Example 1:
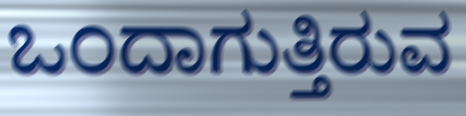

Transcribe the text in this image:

ಒಂದಾಗುತ್ತಿರುವ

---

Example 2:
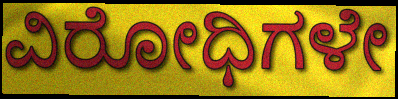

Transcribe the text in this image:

ವಿರೋಧಿಗಳೇ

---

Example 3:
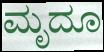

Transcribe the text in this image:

ಮೃದೂ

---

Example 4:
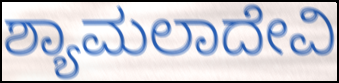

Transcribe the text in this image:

ಶ್ಯಾಮಲಾದೇವಿ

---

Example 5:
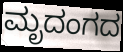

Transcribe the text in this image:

ಮೃದಂಗದ